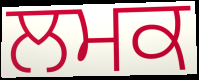
ਲਮਕ